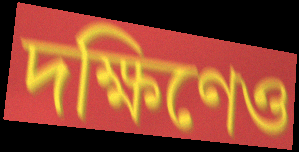
দক্ষিণেও